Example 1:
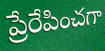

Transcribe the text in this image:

ప్రేరేపించగా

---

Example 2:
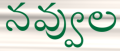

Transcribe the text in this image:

నవ్వుల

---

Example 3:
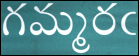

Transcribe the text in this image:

గమ్మరఁ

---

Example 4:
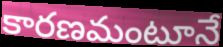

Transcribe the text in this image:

కారణమంటూనే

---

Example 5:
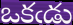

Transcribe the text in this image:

ఒకఁడు